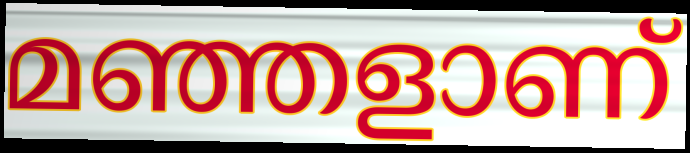
മഞ്ഞളാണ്